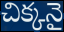
చిక్కనై